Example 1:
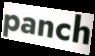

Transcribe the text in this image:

panch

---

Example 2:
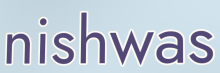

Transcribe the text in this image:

nishwas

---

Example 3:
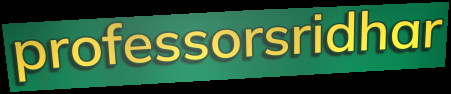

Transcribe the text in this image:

professorsridhar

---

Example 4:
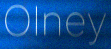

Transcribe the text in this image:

Olney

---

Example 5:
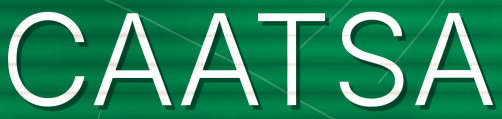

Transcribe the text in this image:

CAATSA